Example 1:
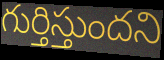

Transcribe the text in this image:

గుర్తిస్తుందని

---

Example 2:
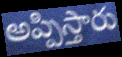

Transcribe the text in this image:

అప్పిస్తారు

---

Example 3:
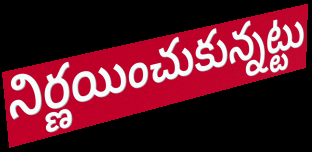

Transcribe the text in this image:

నిర్ణయించుకున్నట్టు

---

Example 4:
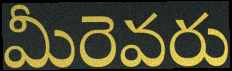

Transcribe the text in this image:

మీరెవరు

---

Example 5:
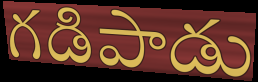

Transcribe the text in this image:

గడిపాడు